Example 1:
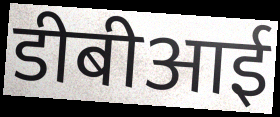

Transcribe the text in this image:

डीबीआई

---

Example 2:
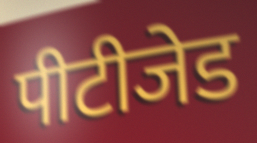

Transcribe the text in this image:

पीटीजेड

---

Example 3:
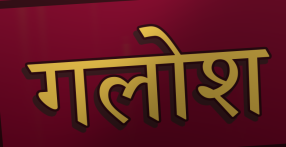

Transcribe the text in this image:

गलोश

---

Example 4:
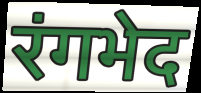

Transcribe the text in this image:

रंगभेद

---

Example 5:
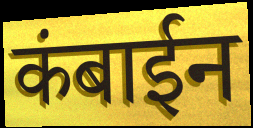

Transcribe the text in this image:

कंबाईन